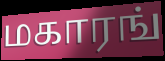
மகாரங்